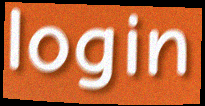
login